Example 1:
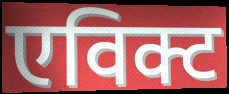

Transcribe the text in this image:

एविक्ट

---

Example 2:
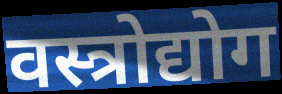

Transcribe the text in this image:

वस्त्रोद्योग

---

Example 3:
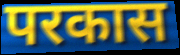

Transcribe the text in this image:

परकास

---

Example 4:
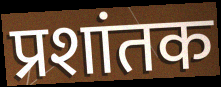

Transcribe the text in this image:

प्रशांतक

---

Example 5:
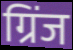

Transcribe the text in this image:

ग्रिंज